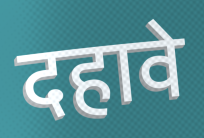
दहावे